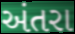
અંતરા